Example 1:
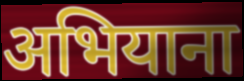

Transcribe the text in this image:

अभियाना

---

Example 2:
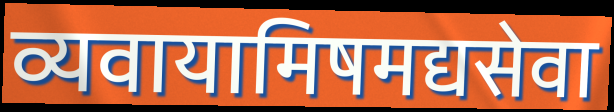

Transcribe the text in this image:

व्यवायामिषमद्यसेवा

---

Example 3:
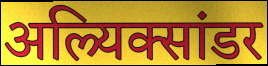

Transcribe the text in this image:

अल्यिक्सांडर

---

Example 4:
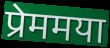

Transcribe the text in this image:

प्रेममया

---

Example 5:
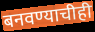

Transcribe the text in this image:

बनवण्याचीही